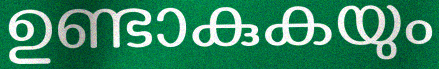
ഉണ്ടാകുകയും